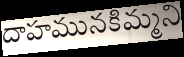
దాహమునకిమ్మని